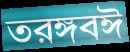
তরঙ্গবঈ